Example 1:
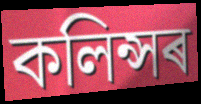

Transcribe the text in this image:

কলিন্সৰ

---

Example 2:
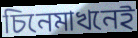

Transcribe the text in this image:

চিনেমাখনেই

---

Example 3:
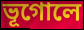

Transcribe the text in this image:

ভূগোলে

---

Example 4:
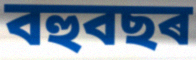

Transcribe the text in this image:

বহুবছৰ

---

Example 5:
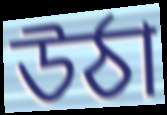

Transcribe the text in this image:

উঠা